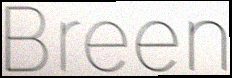
Breen